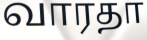
வாரதா